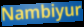
Nambiyur